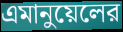
এমানুয়েলের